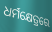
ଧର୍ମକ୍ଷେତ୍ରରେ